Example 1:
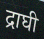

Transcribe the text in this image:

द्राघी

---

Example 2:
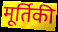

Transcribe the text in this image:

मूर्तिकी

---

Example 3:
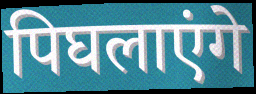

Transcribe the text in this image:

पिघलाएंगे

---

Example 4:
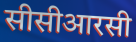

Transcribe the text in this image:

सीसीआरसी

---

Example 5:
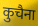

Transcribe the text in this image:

कुचैना